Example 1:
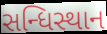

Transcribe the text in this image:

સન્ધિસ્થાન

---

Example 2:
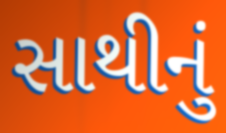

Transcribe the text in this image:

સાથીનું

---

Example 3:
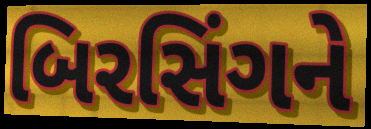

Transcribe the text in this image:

બિરસિંગને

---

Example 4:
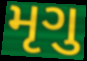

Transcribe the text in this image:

મૃગુ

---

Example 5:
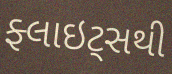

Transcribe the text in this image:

ફ્લાઇટ્સથી